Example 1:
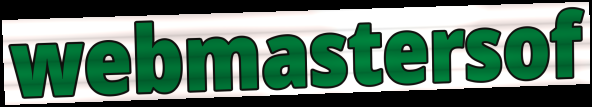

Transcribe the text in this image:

webmastersof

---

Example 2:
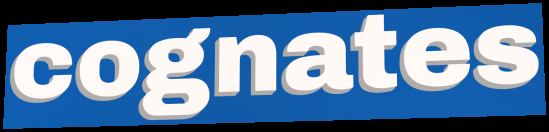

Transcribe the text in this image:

cognates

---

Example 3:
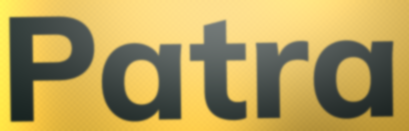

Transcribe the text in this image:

Patra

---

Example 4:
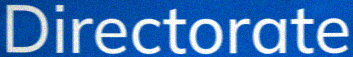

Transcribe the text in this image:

Directorate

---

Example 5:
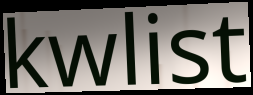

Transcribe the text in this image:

kwlist